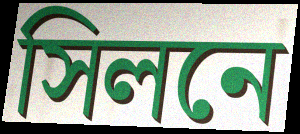
সিলনে